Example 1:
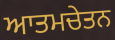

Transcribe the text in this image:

ਆਤਮਚੇਤਨ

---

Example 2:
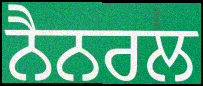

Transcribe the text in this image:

ਨੈਨਰਲ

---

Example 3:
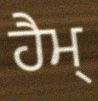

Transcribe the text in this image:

ਹੈਮ੍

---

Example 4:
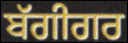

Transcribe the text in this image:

ਬੱਗੀਗਰ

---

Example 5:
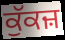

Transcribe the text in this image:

ਕੁੱਕਜ਼